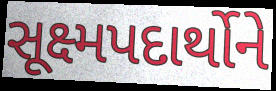
સૂક્ષ્મપદાર્થોને